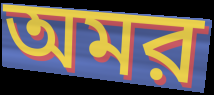
অমর